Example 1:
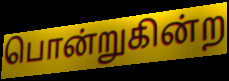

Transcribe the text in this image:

பொன்றுகின்ற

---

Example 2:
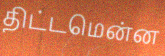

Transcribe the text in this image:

திட்டமென்ன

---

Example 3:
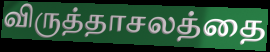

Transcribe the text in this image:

விருத்தாசலத்தை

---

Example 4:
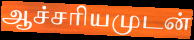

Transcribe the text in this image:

ஆச்சரியமுடன்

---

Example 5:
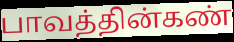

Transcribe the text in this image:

பாவத்தின்கண்